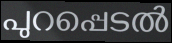
പുറപ്പെടൽ